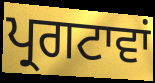
ਪ੍ਰਗਟਾਵਾਂ